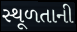
સ્થૂળતાની